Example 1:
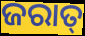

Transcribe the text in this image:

ଜରାତ୍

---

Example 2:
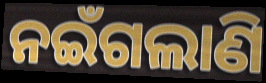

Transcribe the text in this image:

ନଇଁଗଲାଣି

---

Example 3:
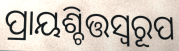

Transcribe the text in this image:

ପ୍ରାୟଶ୍ଚିତ୍ତସ୍ୱରୂପ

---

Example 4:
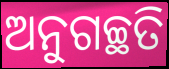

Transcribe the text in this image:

ଅନୁଗଚ୍ଛତି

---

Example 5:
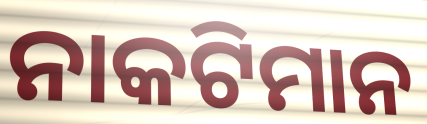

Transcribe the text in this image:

ନାକଟିମାନ